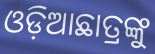
ଓଡ଼ିଆଛାତ୍ରଙ୍କୁ